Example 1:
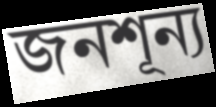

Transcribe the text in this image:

জনশূন্য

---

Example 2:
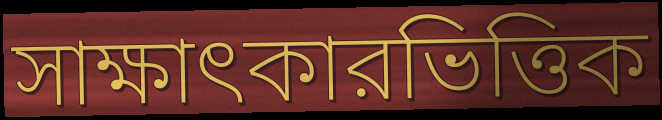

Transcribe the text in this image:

সাক্ষাৎকারভিত্তিক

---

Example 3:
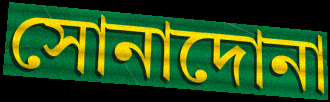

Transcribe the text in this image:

সোনাদোনা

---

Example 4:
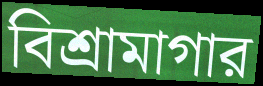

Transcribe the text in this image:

বিশ্রামাগার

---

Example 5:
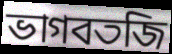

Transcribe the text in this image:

ভাগবতজি